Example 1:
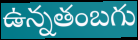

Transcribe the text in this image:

ఉన్నతంబగు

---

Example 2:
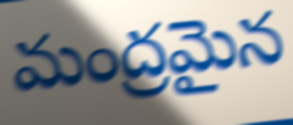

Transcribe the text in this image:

మంద్రమైన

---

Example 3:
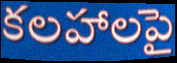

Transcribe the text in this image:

కలహాలపై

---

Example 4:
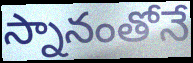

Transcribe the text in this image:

స్నానంతోనే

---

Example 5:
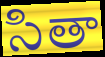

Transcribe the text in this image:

సితా